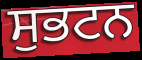
ਸੁਭਟਨ